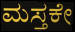
ಮಸ್ತಕೇ